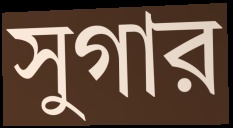
সুগার